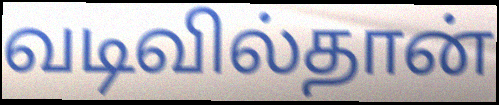
வடிவில்தான்